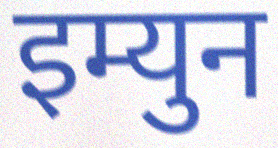
इम्‍युन